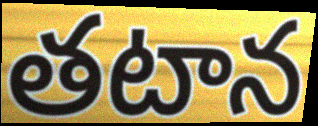
తటాన